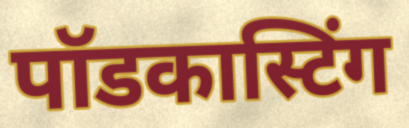
पॉडकास्टिंग